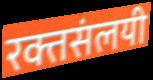
रक्तसंलयी